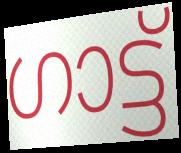
ഗാട്ട്